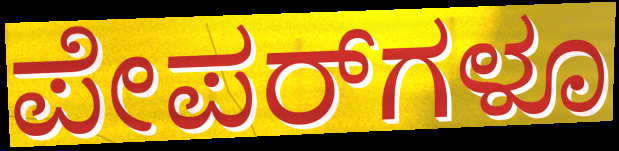
ಪೇಪರ್‌ಗಳೂ